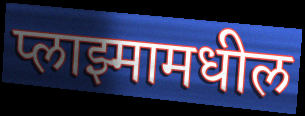
प्लाझ्मामधील